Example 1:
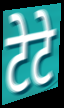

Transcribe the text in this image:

टेटे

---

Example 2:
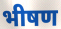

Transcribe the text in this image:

भीषण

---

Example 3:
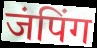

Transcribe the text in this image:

जंपिंग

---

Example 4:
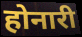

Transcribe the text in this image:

होनारी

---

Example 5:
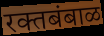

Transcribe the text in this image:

रक्‍तबंबाळ